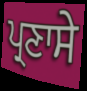
ਪ੍ਰਣਾਸੇ